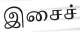
இசைச்